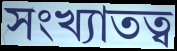
সংখ্যাতত্ব